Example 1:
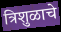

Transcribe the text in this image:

त्रिशुळाचे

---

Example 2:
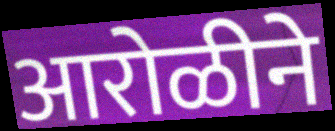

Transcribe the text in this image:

आरोळीने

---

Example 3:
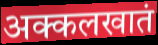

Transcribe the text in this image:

अक्कलखातं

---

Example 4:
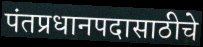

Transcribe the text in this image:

पंतप्रधानपदासाठीचे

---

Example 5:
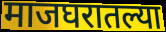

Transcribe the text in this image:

माजघरातल्या